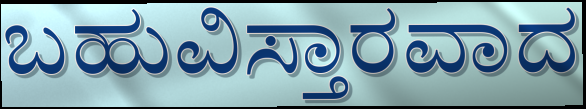
ಬಹುವಿಸ್ತಾರವಾದ